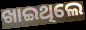
ଖାଇଥିଲେ